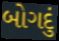
બોગદું